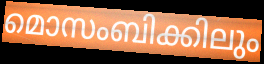
മൊസംബിക്കിലും